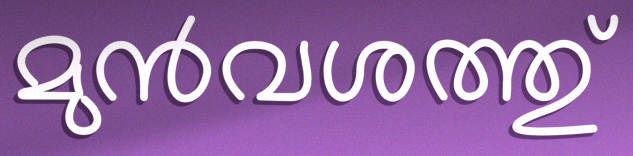
മുൻവശത്തു്